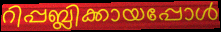
റിപ്പബ്ലിക്കായപ്പോൾ